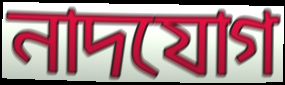
নাদযোগ